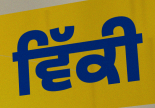
ਵਿੱਕੀ